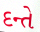
દન્તે